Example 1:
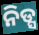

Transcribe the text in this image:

ନିଡ୍ସ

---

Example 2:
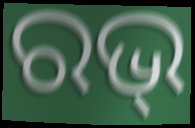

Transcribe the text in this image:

ରଭ୍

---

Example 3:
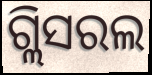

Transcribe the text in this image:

ଗ୍ଲିସରଲ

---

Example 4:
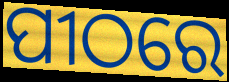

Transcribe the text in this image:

ପୀଠରେ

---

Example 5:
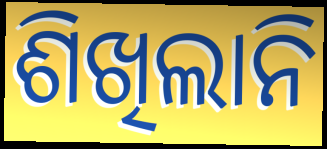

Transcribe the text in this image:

ଶିଖିଲାନି